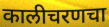
कालीचरणचा